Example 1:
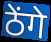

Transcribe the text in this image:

ठेंगे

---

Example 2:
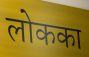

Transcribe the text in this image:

लोकका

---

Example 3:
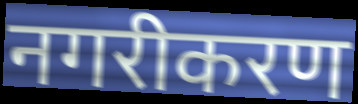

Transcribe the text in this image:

नगरीकरण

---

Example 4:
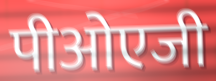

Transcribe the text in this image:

पीओएजी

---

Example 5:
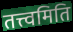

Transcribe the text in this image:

तत्त्वमिति